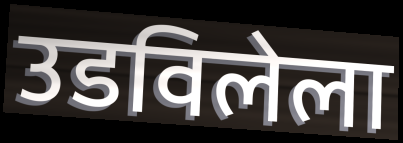
उडविलेला